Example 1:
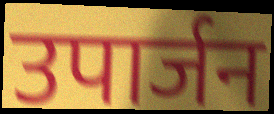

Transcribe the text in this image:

उपार्जन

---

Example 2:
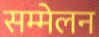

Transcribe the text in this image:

सम्मेलन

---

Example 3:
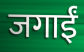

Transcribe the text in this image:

जगाईं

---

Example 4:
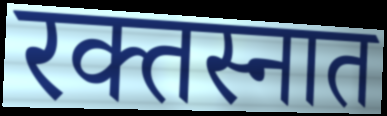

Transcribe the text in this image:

रक्तस्नात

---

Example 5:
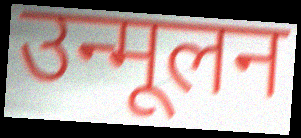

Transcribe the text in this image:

उन्मूलन